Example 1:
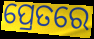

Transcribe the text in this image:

ପ୍ରେତରେ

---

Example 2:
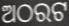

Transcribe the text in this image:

ଅଠରଟ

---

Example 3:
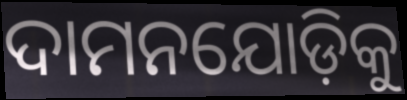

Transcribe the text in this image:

ଦାମନଯୋଡ଼ିକୁ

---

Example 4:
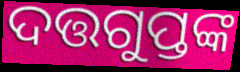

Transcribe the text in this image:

ଦତ୍ତଗୁପ୍ତଙ୍କ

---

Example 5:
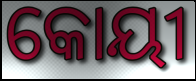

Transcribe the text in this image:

କୋୟୀ